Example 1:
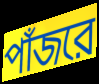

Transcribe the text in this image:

পাঁজরে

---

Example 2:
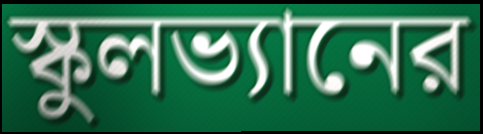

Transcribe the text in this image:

স্কুলভ্যানের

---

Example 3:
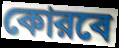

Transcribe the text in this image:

কোরবে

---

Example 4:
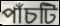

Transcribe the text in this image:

পাঁচটি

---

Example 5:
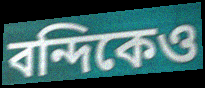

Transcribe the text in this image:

বন্দিকেও